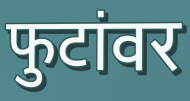
फुटांवर